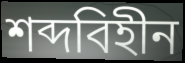
শব্দবিহীন